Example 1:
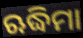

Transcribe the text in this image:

ଋଦ୍ଧିମା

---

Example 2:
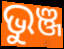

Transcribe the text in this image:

ଭୁଞ୍ଜ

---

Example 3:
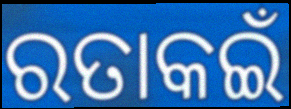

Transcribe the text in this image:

ରତାକଇଁ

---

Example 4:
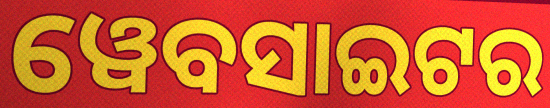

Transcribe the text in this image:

ୱେବସାଇଟର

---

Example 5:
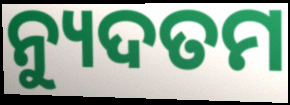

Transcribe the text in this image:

ନ୍ୟୁଦତମ